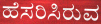
ಹೆಸರಿಸಿರುವ